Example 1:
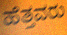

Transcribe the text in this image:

ಹೆತ್ತವರು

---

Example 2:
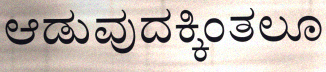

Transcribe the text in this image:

ಆಡುವುದಕ್ಕಿಂತಲೂ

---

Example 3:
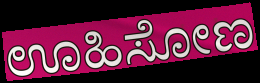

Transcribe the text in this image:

ಊಹಿಸೋಣ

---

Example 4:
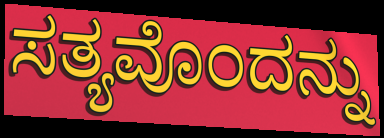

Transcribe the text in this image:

ಸತ್ಯವೊಂದನ್ನು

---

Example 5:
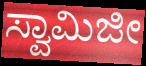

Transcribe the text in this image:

ಸ್ವಾಮಿಜೀ